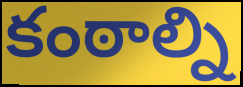
కంఠాల్ని